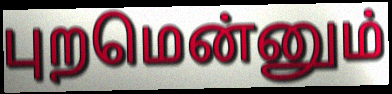
புறமென்னும்